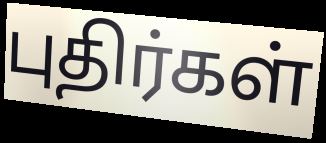
புதிர்கள்